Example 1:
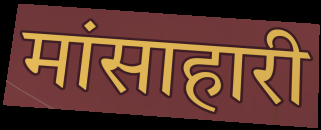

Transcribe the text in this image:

मांसाहारी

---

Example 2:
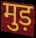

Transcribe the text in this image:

मुड़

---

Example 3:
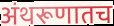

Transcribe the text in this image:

अंथरूणातच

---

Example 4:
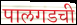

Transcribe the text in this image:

पालगडची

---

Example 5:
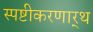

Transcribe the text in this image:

स्पष्टीकरणार्थ